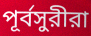
পূর্বসুরীরা